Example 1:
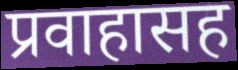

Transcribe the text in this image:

प्रवाहासह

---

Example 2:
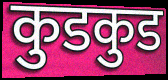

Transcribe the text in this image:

कुडकुड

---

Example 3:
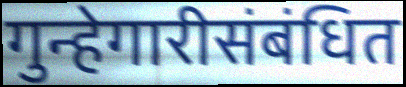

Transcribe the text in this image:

गुन्हेगारीसंबंधित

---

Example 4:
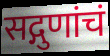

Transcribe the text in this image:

सद्गुणांचं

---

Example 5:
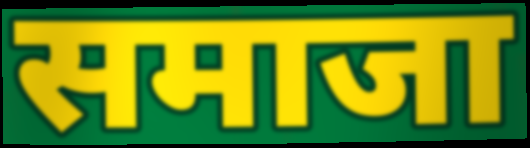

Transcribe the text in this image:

समाजा